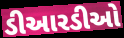
ડીઆરડીઓ